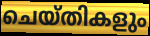
ചെയ്തികളും